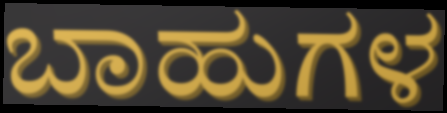
ಬಾಹುಗಳ